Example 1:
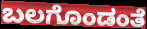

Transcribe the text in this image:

ಬಲಗೊಂಡಂತೆ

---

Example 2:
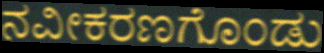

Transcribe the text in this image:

ನವೀಕರಣಗೊಂಡು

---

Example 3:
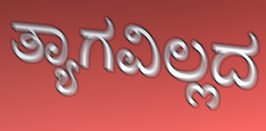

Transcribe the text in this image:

ತ್ಯಾಗವಿಲ್ಲದ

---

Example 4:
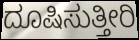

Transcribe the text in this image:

ದೂಷಿಸುತ್ತೀರಿ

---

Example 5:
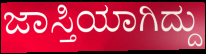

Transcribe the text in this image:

ಜಾಸ್ತಿಯಾಗಿದ್ದು